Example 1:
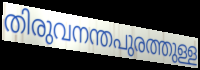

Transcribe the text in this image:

തിരുവനന്തപുരത്തുള്ള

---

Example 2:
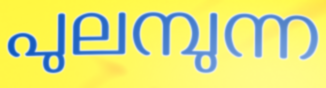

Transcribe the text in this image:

പുലമ്പുന്ന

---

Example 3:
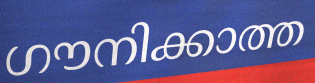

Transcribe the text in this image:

ഗൗനിക്കാത്ത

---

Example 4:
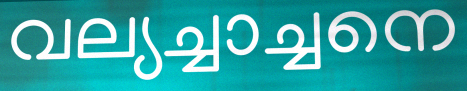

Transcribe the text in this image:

വല്യച്ചാച്ചനെ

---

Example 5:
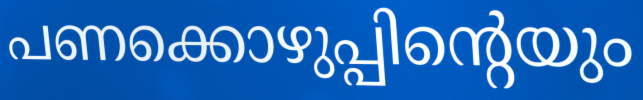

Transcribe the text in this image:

പണക്കൊഴുപ്പിന്റെയും